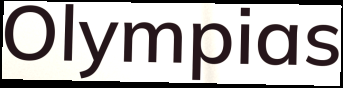
Olympias